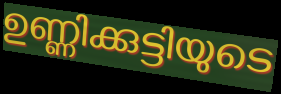
ഉണ്ണിക്കുട്ടിയുടെ